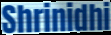
Shrinidhi